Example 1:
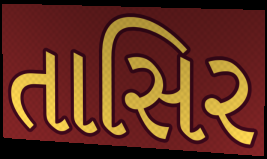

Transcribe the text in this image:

તાસિર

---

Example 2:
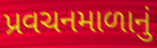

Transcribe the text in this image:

પ્રવચનમાળાનું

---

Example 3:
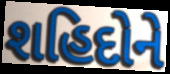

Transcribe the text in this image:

શહિદોને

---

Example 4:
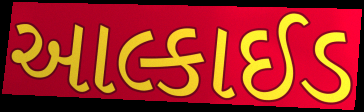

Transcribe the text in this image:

આલ્કાઈડ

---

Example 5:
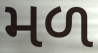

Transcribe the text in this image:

મળ